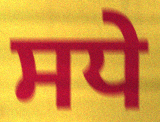
ਸਧੇ